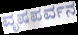
ವೃಷಪರ್ವನ